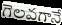
గెలవగానే